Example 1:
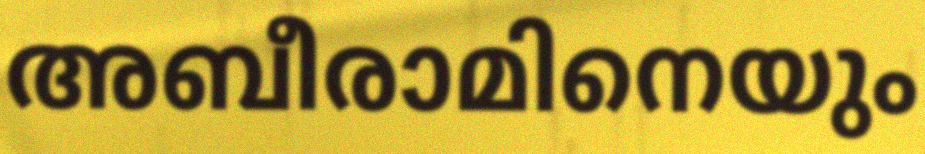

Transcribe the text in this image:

അബീരാമിനെയും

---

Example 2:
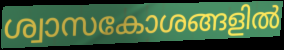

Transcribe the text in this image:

ശ്വാസകോശങ്ങളിൽ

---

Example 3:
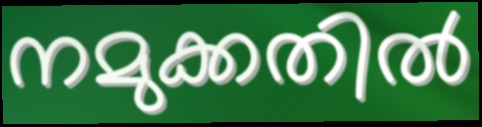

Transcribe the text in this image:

നമുക്കതിൽ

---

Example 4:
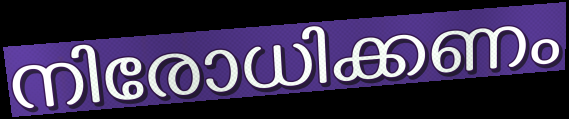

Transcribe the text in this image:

നിരോധിക്കണം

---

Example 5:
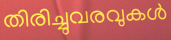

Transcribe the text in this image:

തിരിച്ചുവരവുകൾ